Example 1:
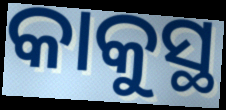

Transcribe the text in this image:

କାକୁସ୍ଥ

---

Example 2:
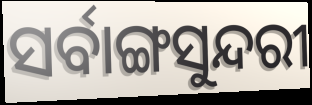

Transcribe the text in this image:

ସର୍ବାଙ୍ଗସୁନ୍ଦରୀ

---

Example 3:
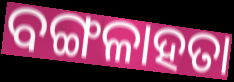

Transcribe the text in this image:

ବଙ୍ଗଳାହତା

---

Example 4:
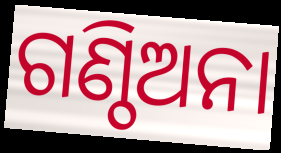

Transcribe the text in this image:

ଗଣ୍ଠିଅନା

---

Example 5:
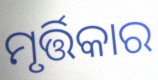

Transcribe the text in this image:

ମୃର୍ତ୍ତିକାର